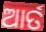
ଆର୍ତ